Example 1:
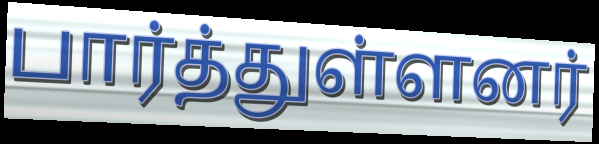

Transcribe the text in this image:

பார்த்துள்ளனர்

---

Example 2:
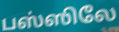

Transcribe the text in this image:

பஸ்ஸிலே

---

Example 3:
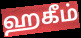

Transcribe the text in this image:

ஹகீம்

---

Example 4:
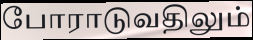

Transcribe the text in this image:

போராடுவதிலும்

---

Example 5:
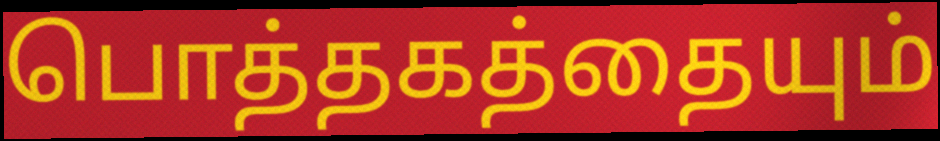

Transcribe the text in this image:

பொத்தகத்தையும்